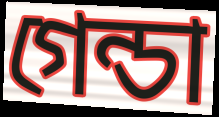
গেন্ডা